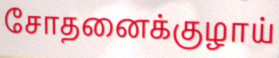
சோதனைக்குழாய்